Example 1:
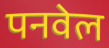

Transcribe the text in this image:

पनवेल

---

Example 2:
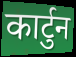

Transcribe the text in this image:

कार्टुन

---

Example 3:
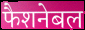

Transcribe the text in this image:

फैशनेबल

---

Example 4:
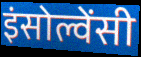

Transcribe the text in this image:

इंसोल्वेंसी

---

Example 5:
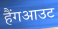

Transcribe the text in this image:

हैंगआउट